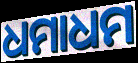
ଧମାଧମ